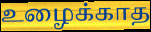
உழைக்காத